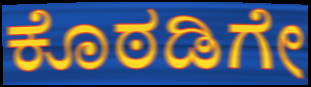
ಕೊಠಡಿಗೇ